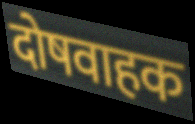
दोषवाहक